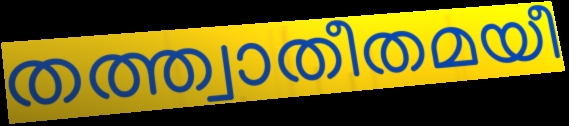
തത്ത്വാതീതമയീ